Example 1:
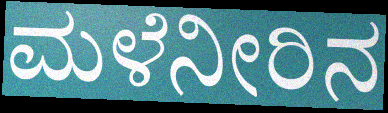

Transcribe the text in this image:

ಮಳೆನೀರಿನ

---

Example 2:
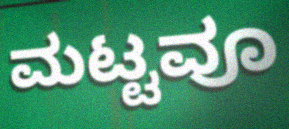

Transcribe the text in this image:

ಮಟ್ಟವೂ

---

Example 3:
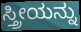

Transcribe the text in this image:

ಸ್ತ್ರೀಯನ್ನು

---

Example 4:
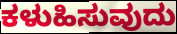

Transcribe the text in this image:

ಕಳುಹಿಸುವುದು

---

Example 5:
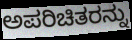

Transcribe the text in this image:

ಅಪರಿಚಿತರನ್ನು